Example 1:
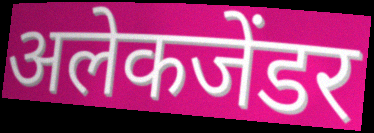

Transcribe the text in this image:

अलेकजेंडर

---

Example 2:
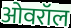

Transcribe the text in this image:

ओवरॉल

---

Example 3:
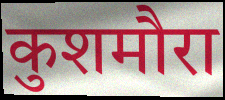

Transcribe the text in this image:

कुशमौरा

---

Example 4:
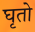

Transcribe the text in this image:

घृतो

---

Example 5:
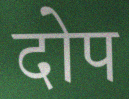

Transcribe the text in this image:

दोप